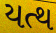
યત્થ